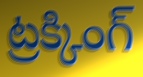
ట్రక్కింగ్